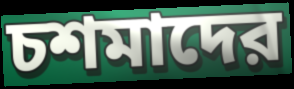
চশমাদের